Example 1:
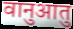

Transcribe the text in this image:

वानुआतु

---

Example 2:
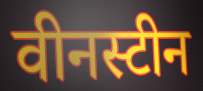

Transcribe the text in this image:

वीनस्टीन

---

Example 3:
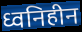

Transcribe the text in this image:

ध्वनिहीन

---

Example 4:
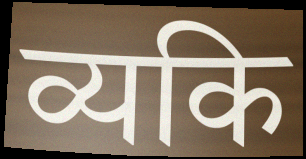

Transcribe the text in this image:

व्यकि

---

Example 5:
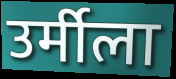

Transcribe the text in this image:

उर्मीला